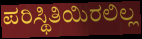
ಪರಿಸ್ಥಿತಿಯಿರಲಿಲ್ಲ